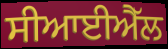
ਸੀਆਈਐੱਲ